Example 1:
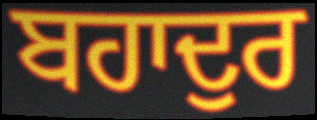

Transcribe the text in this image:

ਬਹਾਦੁਰ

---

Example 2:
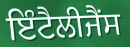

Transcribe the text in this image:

ਇੰਟੈਲੀਜੈਂਸ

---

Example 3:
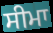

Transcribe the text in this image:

ਸੀਮਾ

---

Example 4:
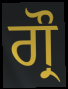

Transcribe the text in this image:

ਗ੍ਰੌ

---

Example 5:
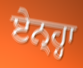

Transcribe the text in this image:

ਏਨ੍ਹ੍ਹਾ